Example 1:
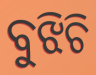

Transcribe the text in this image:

ବୁଝିଚି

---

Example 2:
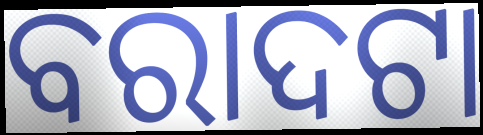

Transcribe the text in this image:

ବରାଦଟା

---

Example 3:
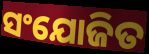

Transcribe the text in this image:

ସଂଯୋଜିତ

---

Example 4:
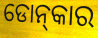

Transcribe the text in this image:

ଡୋନ୍‍କାର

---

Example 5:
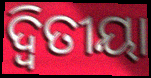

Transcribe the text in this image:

ଦ୍ବିତୀୟା